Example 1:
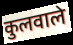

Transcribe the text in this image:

कुलवाले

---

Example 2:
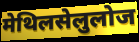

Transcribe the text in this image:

मेथिलसेलुलोज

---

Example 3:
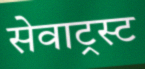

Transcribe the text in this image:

सेवाट्रस्ट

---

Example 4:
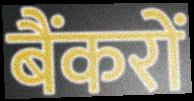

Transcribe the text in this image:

बैंकरों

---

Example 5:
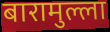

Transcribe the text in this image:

बारामुल्‍ला